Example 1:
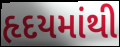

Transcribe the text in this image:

હૃદયમાંથી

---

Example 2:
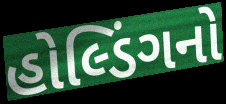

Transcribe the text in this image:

હોલ્ડિંગનો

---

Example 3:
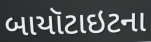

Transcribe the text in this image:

બાયૉટાઇટના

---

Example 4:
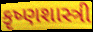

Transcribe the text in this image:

કૃષ્ણશાસ્ત્રી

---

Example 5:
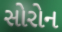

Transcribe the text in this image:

સોરોન